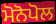
ਮੋਨੋਪੋਲ